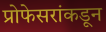
प्रोफेसरांकडून